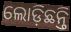
ଲୋଡ଼ିଛନ୍ତି